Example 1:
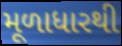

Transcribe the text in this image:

મૂળાધારથી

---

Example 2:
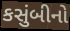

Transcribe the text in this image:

કસુંબીનો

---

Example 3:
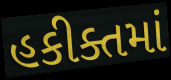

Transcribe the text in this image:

હકીક્તમાં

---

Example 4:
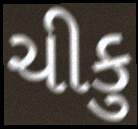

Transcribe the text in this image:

ચીકુ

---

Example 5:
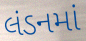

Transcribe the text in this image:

લંડનમાં